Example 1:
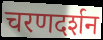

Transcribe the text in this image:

चरणदर्शन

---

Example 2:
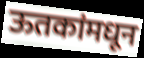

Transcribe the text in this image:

ऊतकांमधून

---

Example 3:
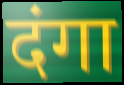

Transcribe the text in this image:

दंगा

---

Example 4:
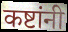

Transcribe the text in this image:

कष्टांनी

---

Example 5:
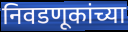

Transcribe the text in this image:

निवडणूकांच्या